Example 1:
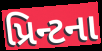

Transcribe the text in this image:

પ્રિન્ટના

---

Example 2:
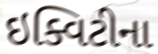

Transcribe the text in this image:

ઇક્વિટીના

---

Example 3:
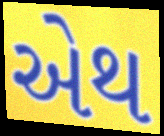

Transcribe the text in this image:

એથ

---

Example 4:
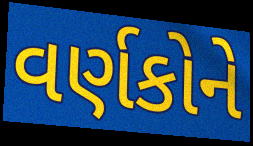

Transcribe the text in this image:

વર્ણકોને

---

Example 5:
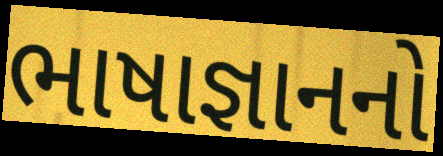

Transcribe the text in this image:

ભાષાજ્ઞાનનો